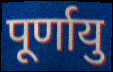
पूर्णायु